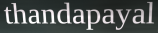
thandapayal